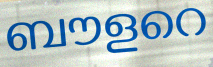
ബൗളറെ